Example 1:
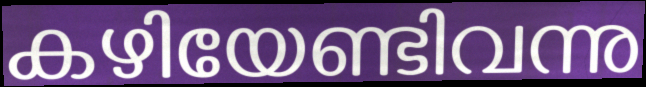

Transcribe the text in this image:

കഴിയേണ്ടിവന്നു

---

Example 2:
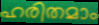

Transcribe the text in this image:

ഹരിതമാം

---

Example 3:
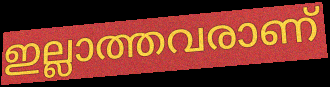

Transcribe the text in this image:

ഇല്ലാത്തവരാണ്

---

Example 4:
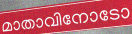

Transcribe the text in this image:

മാതാവിനോടോ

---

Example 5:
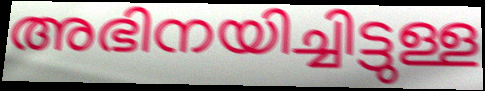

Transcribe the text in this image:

അഭിനയിച്ചിട്ടുള്ള